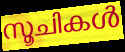
സൂചികൾ